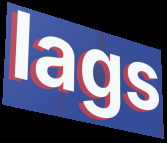
lags